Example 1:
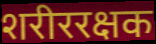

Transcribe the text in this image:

शरीररक्षक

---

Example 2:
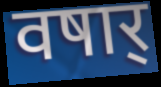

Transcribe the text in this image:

वषार्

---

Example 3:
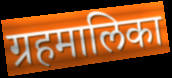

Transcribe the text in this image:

ग्रहमालिका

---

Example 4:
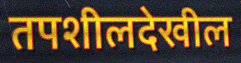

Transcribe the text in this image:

तपशीलदेखील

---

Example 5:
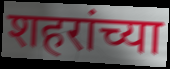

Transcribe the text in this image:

शहरांच्या